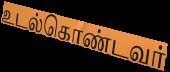
உடல்கொண்டவர்